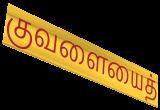
குவளையைத்